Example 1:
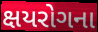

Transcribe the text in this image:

ક્ષયરોગના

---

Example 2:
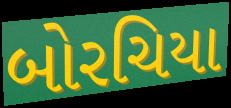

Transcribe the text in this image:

બોરચિયા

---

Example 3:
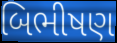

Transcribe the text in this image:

બિભીષણ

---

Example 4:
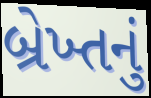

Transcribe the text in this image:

બ્રેખ્તનું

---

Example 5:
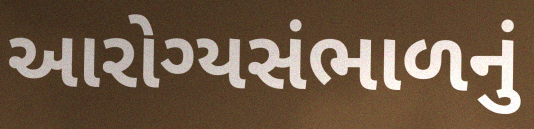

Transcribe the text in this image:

આરોગ્યસંભાળનું